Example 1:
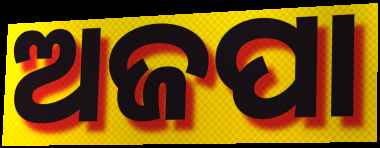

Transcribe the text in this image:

ଅଜପା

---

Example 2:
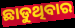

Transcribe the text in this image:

ଛାଡୁଥିବାର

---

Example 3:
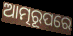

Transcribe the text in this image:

ଆତ୍ମରୂପରେ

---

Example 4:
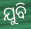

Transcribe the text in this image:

ଯୁବି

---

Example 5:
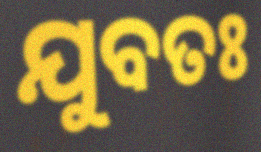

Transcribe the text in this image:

ଯୁବତଃ